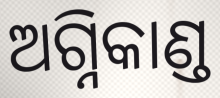
ଅଗ୍ନିକାଣ୍ଡ